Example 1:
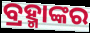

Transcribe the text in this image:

ବ୍ରହ୍ମାଙ୍କର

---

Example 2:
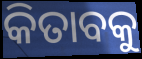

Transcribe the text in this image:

କିତାବକୁ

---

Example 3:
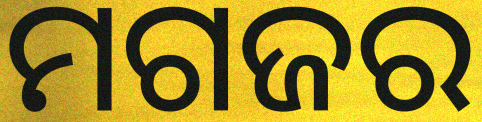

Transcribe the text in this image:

ମଗଜର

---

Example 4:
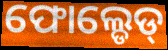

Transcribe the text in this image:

ଫୋଲ୍ଡେଡ୍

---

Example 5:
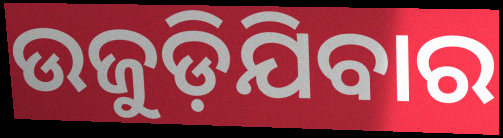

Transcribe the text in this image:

ଉଜୁଡ଼ିଯିବାର